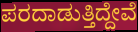
ಪರದಾಡುತ್ತಿದ್ದೇವೆ